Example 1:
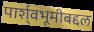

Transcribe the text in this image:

पार्श्वभूमीबद्दल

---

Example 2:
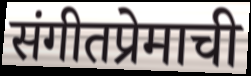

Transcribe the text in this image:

संगीतप्रेमाची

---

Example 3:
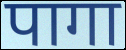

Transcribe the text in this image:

पागा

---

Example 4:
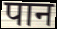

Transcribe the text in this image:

पान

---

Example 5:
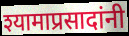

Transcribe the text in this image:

श्यामाप्रसादांनी